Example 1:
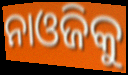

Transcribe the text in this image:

ନାଓଜିକୁ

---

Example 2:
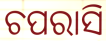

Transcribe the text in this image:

ଚପରାସି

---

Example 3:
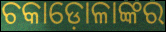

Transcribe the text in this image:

ଚକାଡ଼ୋଳାଙ୍କର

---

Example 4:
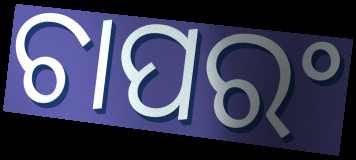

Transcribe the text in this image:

ଚାପରଂ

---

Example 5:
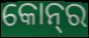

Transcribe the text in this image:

କୋନ୍‌ର